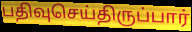
பதிவுசெய்திருப்பார்